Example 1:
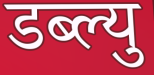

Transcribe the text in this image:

डब्ल्यु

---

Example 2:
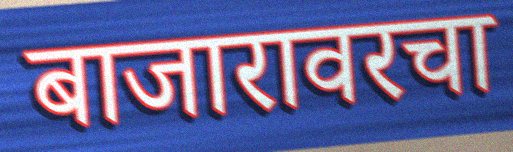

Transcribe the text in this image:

बाजारावरचा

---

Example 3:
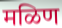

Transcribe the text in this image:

मळिण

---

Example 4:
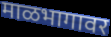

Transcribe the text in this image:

माळभागावर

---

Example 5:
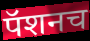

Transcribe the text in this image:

पॅशनच